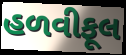
હળવીફૂલ